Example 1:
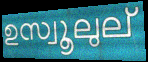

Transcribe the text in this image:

ഉസ്വൂലുല്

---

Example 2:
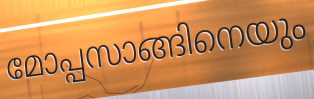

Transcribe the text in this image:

മോപ്പസാങ്ങിനെയും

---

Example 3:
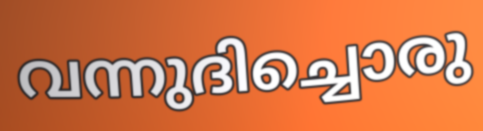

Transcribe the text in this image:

വന്നുദിച്ചൊരു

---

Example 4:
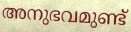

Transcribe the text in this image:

അനുഭവമുണ്ട്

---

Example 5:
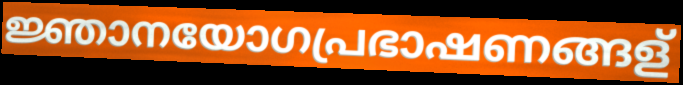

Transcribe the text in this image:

ജ്ഞാനയോഗപ്രഭാഷണങ്ങള്